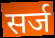
सर्ज